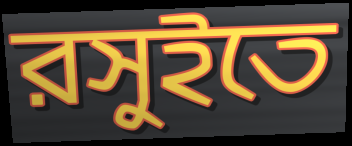
রসুইতে